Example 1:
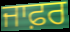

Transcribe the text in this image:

ਜਾਫ਼ਰ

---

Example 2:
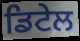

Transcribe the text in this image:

ਡਿਟੇਲ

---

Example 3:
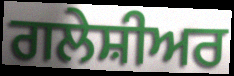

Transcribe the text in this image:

ਗਲੇਸ਼ੀਅਰ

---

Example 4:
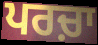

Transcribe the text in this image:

ਪਰਚ਼ਾ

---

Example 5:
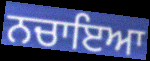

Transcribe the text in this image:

ਨਚਾਇਆ